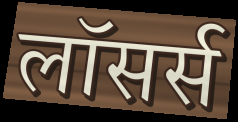
लॉसर्स